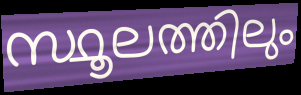
സ്ഥൂലത്തിലും